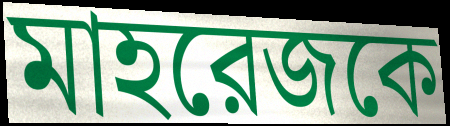
মাহরেজকে